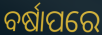
ବର୍ଷାପରେ